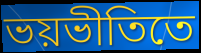
ভয়ভীতিতে